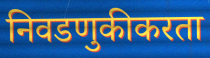
निवडणुकीकरता